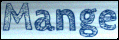
Mange